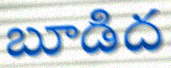
బూడిద